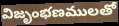
విజృంభణములతో